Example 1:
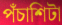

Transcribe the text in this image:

পঁচাশিটা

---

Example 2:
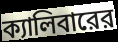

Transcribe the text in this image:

ক্যালিবারের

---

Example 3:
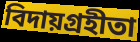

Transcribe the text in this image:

বিদায়গ্রহীতা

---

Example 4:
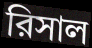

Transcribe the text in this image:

রিসাল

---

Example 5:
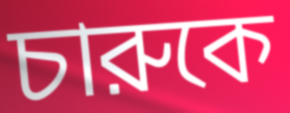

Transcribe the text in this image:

চারুকে